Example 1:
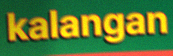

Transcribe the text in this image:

kalangan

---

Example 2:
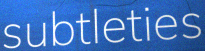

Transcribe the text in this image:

subtleties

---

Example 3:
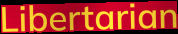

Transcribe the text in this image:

Libertarian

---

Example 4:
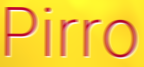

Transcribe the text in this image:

Pirro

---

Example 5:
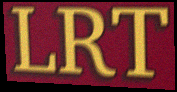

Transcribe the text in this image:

LRT